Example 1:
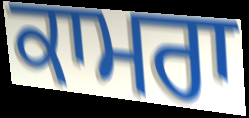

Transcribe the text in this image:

ਕਾਮਰਾ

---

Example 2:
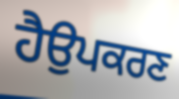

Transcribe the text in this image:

ਹੈਉਪਕਰਣ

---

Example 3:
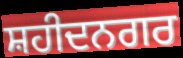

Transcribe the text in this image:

ਸ਼ਹੀਦਨਗਰ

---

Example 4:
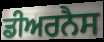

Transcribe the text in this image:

ਡੀਅਰਨੈਸ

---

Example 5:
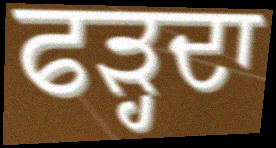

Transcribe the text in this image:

ਫੜ੍ਹਦਾ